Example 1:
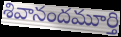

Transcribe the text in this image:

శివానందమూర్తి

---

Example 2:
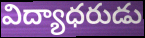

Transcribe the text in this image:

విద్యాధరుడు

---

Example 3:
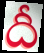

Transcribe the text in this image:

దీ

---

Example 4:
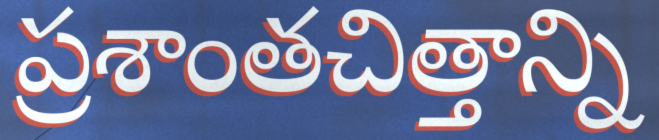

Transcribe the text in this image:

ప్రశాంతచిత్తాన్ని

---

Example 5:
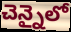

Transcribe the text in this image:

చెన్నైలో